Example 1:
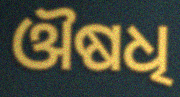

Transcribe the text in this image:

ଔଷଧି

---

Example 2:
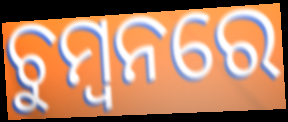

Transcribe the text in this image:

ଚୁମ୍ୱନରେ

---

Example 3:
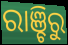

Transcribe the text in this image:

ରାଞ୍ଚିରୁ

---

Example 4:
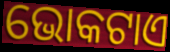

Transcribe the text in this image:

ଭୋକଟାଏ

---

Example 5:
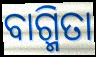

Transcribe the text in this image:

ବାଗ୍ମିତା